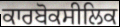
ਕਾਰਬੋਕਸੀਲਿਕ